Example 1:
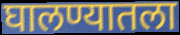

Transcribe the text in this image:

घालण्यातला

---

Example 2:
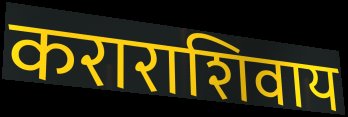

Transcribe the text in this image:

कराराशिवाय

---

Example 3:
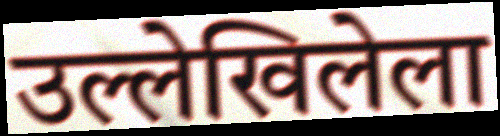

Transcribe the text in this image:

उल्लेखिलेला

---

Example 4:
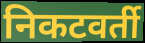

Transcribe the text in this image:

निकटवर्ती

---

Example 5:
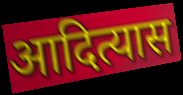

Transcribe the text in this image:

आदित्यास